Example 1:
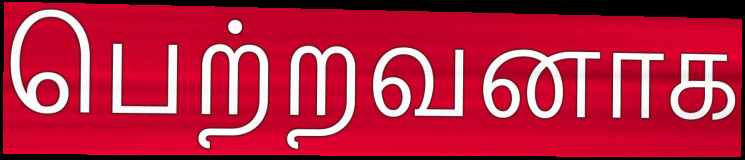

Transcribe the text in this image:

பெற்றவனாக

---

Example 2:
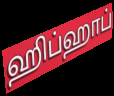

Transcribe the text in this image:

ஹிப்ஹாப்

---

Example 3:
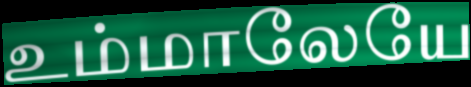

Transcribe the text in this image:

உம்மாலேயே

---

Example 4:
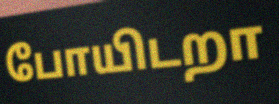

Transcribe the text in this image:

போயிடறா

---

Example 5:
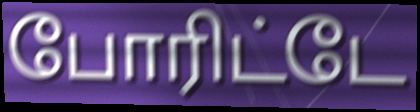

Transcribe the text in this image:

போரிட்டே